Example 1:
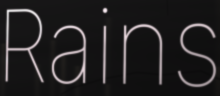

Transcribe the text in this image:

Rains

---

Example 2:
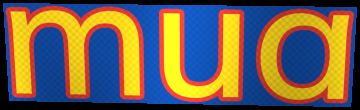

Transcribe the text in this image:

mua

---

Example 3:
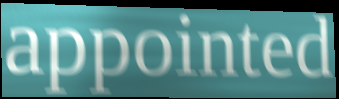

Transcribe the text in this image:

appointed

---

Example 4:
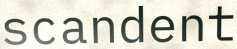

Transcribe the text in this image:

scandent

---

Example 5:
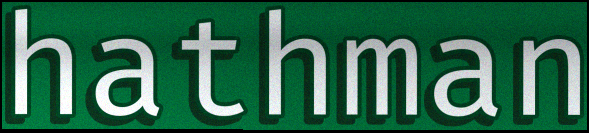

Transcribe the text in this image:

hathman